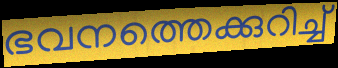
ഭവനത്തെക്കുറിച്ച്